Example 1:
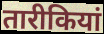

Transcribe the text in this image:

तारीकियां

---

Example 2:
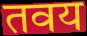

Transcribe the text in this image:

तवय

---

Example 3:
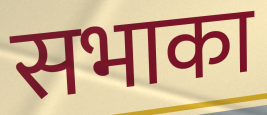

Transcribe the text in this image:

सभाका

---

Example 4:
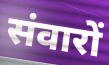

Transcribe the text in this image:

संवारों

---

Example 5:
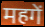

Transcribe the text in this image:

महगें